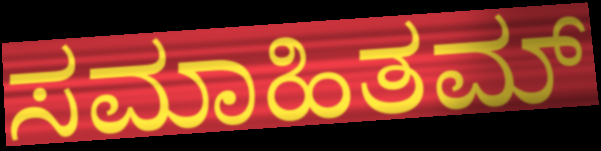
ಸಮಾಹಿತಮ್